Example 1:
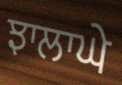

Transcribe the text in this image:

ਝਾਲਾਘੇ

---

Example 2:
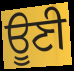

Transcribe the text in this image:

ਊਣੀ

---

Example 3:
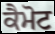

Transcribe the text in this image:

ਕੈਮੋਟ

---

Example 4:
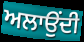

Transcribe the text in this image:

ਅਲਾਉਂਦੀ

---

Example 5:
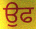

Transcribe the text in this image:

ਉਫ